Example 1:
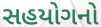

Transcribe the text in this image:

સહયોગનો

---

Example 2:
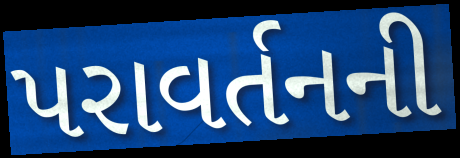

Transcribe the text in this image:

પરાવર્તનની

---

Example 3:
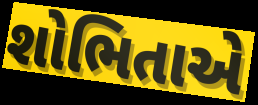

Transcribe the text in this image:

શોભિતાએ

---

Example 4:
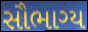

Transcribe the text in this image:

સૌભાગ્ય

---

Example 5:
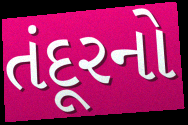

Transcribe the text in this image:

તંદૂરનો